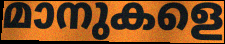
മാനുകളെ